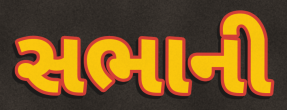
સભાની